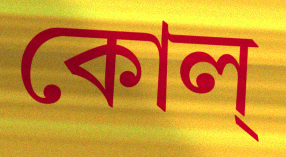
কোল্